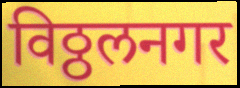
विठ्ठलनगर